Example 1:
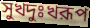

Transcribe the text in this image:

সুখদুঃখরূপ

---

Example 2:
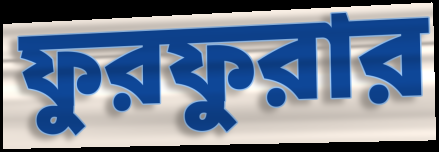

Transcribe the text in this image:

ফুরফুরার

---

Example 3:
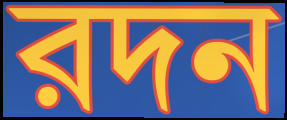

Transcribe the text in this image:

রদন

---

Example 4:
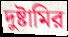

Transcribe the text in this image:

দুষ্টামির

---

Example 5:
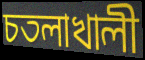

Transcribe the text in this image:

চতলাখালী